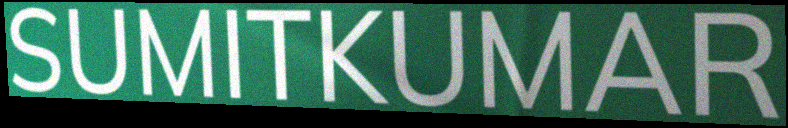
SUMITKUMAR